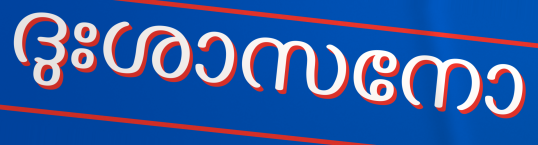
ദുഃശാസനോ